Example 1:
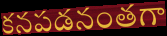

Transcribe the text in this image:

కనపడనంతగా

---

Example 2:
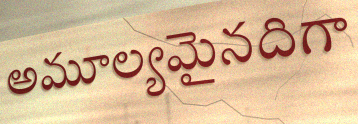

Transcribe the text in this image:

అమూల్యమైనదిగా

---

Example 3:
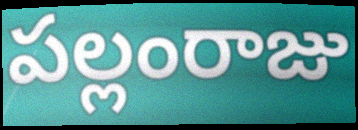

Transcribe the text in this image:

పల్లంరాజు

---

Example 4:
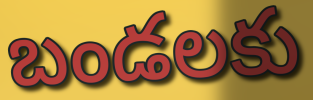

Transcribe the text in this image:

బండలకు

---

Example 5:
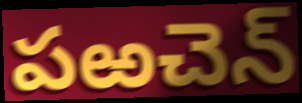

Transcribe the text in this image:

పఱచెన్